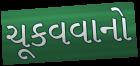
ચૂકવવાનો